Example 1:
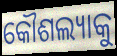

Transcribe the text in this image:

କୌଶଲ୍ୟାକୁ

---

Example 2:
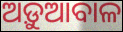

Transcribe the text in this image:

ଅଡ଼ୁଆବାଳ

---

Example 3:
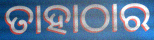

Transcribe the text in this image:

ତାହାଠାର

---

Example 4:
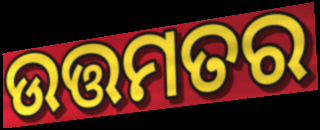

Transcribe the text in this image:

ଉତ୍ତମତର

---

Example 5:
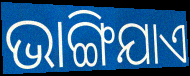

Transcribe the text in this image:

ଭାଙ୍ଗିଯାଏ